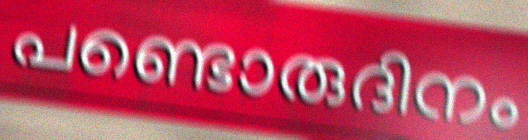
പണ്ടൊരുദിനം